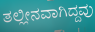
ತಲ್ಲೀನವಾಗಿದ್ದವು